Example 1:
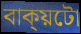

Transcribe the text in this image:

বাক্য়টো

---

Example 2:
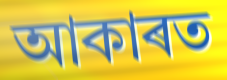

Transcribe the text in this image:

আকাৰত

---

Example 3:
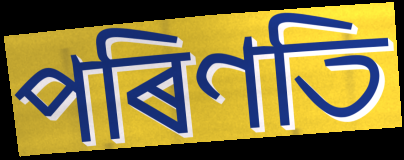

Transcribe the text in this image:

পৰিণতি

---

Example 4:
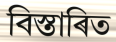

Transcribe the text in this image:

বিস্তাৰিত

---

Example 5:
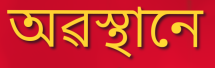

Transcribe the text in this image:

অৱস্থানে